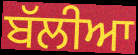
ਬੱਲੀਆ